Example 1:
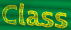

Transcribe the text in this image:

Class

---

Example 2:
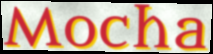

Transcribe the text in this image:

Mocha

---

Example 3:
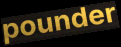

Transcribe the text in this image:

pounder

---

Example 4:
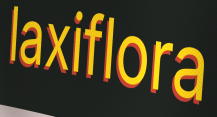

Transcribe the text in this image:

laxiflora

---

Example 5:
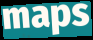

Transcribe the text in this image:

maps